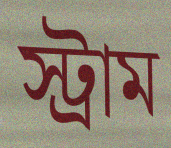
স্ট্রাম